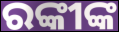
ରଙ୍କୀଙ୍କ